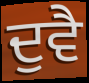
ਦੁਵੈ